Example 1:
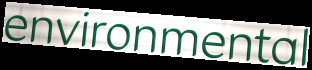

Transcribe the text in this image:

environmental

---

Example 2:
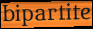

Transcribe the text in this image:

bipartite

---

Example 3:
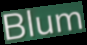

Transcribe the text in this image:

Blum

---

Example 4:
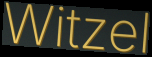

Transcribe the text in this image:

Witzel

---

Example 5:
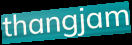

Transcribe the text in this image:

thangjam